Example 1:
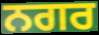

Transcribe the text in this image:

ਨਗਰ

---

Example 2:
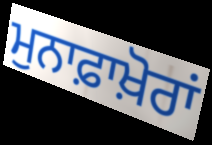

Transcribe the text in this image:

ਮੁਨਾਫ਼ਾਖ਼ੋਰਾਂ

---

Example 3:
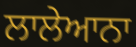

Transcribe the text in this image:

ਲਾਲੇਆਨਾ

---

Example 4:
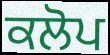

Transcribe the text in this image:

ਕਲੋਪ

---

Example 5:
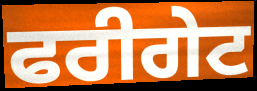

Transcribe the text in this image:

ਫਰੀਗੇਟ